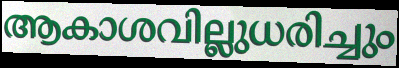
ആകാശവില്ലുധരിച്ചും